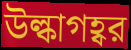
উল্কাগহ্বর